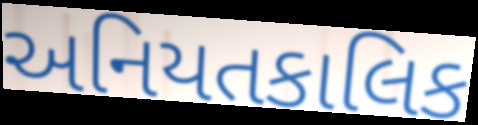
અનિયતકાલિક